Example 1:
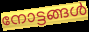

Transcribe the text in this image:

നോട്ടങ്ങൾ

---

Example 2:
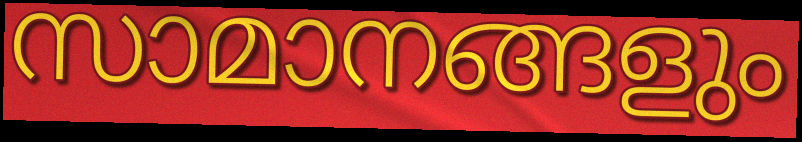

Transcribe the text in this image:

സാമാനങ്ങളും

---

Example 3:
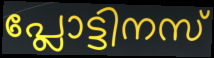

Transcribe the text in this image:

പ്ലോട്ടിനസ്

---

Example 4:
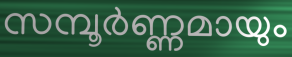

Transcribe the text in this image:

സമ്പൂർണ്ണമായും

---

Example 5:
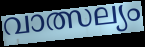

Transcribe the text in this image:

വാത്സല്യം